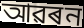
আৱৰন